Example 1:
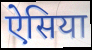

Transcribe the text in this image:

ऐसिया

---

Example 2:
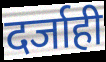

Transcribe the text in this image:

दर्जाही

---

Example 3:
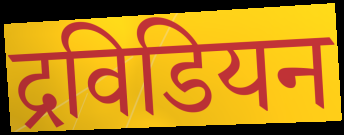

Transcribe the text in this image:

द्रविडियन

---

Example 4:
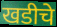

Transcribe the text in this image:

खडीचे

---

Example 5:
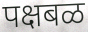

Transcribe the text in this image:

पक्षबळ